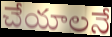
చేయాలనే